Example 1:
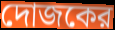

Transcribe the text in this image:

দোজকের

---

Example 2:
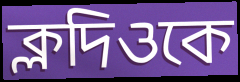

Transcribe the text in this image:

ক্লদিওকে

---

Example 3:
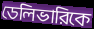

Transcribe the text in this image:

ডেলিভারিকে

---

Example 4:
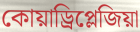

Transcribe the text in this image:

কোয়াড্রিপ্লেজিয়া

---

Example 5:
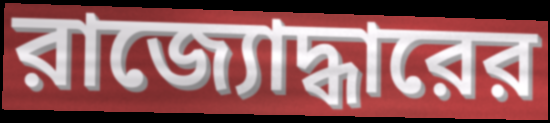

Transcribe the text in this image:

রাজ্যোদ্ধারের